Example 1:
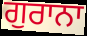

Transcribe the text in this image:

ਗੁਰਾਨਾ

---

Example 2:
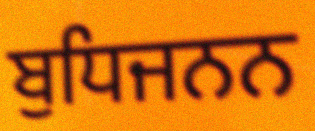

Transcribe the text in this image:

ਬੁਧਿਜਨਨ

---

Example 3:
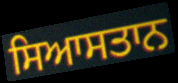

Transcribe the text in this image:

ਸਿਆਸਤਾਨ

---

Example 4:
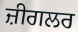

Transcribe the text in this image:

ਜ਼ੀਗਲਰ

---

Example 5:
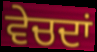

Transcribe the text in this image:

ਵੇਚਦਾਂ